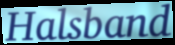
Halsband